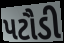
પટૌડી